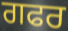
ਗਫਰ